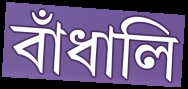
বাঁধালি